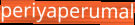
periyaperumal